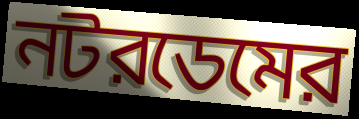
নটরডেমের